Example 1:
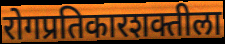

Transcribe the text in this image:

रोगप्रतिकारशक्तीला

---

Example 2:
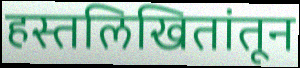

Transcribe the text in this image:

हस्तलिखितांतून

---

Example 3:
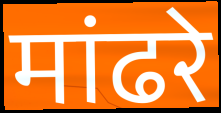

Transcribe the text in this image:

मांढरे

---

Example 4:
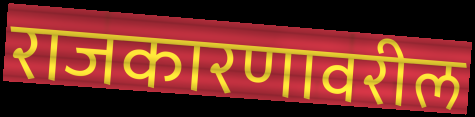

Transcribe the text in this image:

राजकारणावरील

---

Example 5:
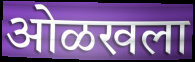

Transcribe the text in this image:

ओळखला